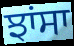
ਝਾਂਸਾ